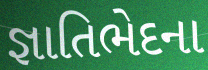
જ્ઞાતિભેદના